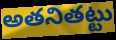
అతనితట్టు